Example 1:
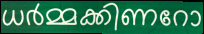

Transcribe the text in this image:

ധർമ്മക്കിണറോ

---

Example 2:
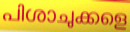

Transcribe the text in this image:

പിശാചുക്കളെ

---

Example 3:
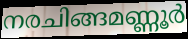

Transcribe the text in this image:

നരചിങ്ങമണ്ണൂർ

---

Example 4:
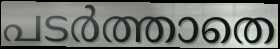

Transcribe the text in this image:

പടർത്താതെ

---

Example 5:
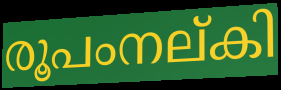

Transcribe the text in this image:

രൂപംനല്കി